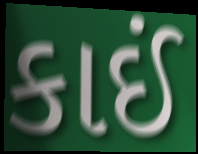
કાઈં